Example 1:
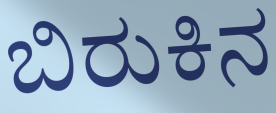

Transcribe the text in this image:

ಬಿರುಕಿನ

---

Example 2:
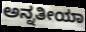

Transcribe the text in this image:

ಅನ್ನತೀಯಾ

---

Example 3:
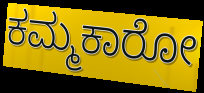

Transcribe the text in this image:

ಕಮ್ಮಕಾರೋ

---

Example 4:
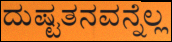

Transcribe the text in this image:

ದುಷ್ಟತನವನ್ನೆಲ್ಲ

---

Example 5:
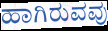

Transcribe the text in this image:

ಹಾಗಿರುವವು